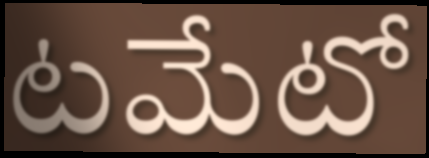
టమేటో